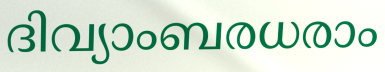
ദിവ്യാംബരധരാം